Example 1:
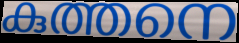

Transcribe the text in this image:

കുത്തനെ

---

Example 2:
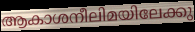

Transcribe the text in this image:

ആകാശനീലിമയിലേക്കു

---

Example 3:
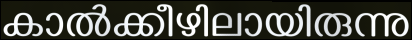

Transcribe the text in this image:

കാൽക്കീഴിലായിരുന്നു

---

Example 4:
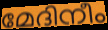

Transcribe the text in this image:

മേദിനീം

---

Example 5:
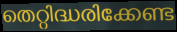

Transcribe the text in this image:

തെറ്റിദ്ധരിക്കേണ്ട